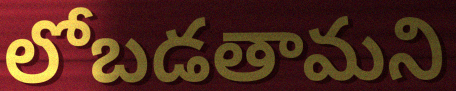
లోబడతామని